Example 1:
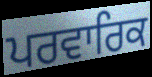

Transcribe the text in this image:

ਪਰਵਾਰਿਕ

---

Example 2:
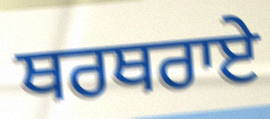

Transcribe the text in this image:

ਥਰਥਰਾਏ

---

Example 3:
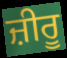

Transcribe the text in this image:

ਜ਼ੀਰੂ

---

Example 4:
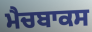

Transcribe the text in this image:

ਮੈਚਬਾਕਸ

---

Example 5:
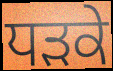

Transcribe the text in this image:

ਧੜਕੇ